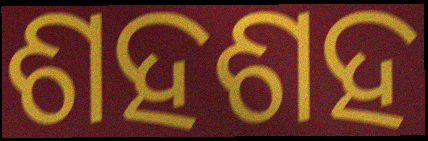
ଶହଶହ